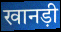
खानड़ी